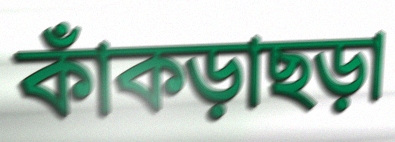
কাঁকড়াছড়া